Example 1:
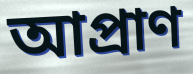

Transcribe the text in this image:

আপ্ৰাণ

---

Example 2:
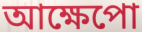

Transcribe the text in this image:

আক্ষেপো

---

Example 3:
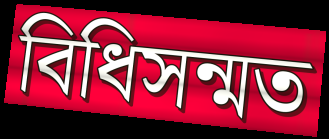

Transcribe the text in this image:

বিধিসন্মত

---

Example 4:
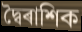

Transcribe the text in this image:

দ্বৈৰাশিক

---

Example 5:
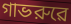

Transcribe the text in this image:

গাভৰুৱে